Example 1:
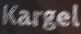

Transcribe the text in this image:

Kargel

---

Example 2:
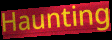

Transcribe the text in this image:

Haunting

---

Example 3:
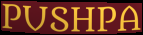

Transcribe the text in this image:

PUSHPA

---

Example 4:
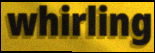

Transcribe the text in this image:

whirling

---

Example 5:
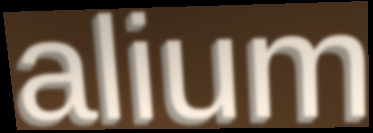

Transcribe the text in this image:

alium